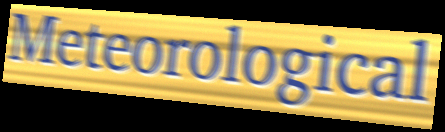
Meteorological